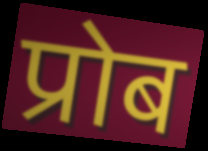
प्रोब